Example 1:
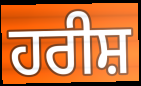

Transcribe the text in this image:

ਹਰੀਸ਼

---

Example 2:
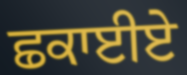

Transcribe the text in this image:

ਛਕਾਈਏ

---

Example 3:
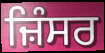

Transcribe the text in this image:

ਜ਼ਿੰਸਰ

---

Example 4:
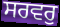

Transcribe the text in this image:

ਸਰਵਰੁ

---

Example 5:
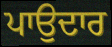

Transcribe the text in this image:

ਪਾਉਦਾਰ